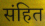
संहित